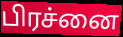
பிரச்னை